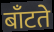
बाँटते